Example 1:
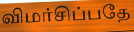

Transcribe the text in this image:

விமர்சிப்பதே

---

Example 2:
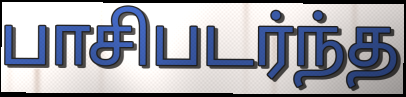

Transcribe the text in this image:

பாசிபடர்ந்த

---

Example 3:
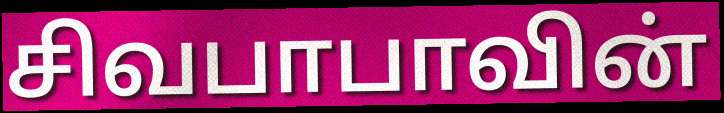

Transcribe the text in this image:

சிவபாபாவின்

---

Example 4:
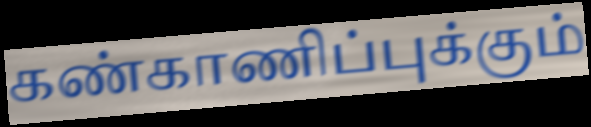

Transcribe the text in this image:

கண்காணிப்புக்கும்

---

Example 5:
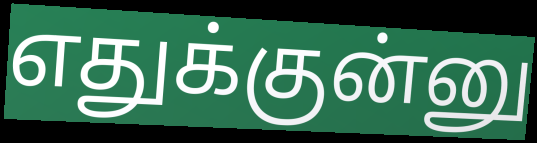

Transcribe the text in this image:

எதுக்குன்னு